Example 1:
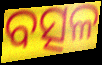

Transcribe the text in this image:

ବତ୍ସଳ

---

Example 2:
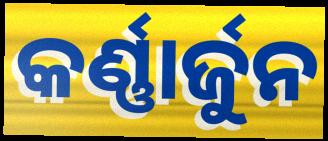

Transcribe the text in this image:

କର୍ଣ୍ଣାର୍ଜୁନ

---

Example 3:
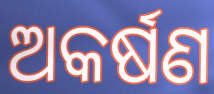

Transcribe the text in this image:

ଅକର୍ଷଣ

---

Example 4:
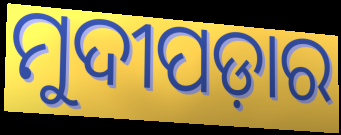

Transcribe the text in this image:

ମୁଦୀପଡ଼ାର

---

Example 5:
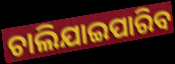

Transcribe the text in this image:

ଚାଲିଯାଇପାରିବ